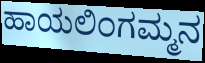
ಹಾಯಲಿಂಗಮ್ಮನ